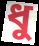
ধু